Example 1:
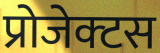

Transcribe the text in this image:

प्रोजेक्‍टस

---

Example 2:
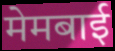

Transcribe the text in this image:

मेमबाई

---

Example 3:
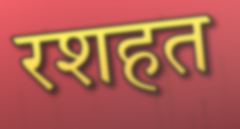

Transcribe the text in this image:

रशहत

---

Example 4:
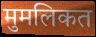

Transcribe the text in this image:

मुमलिकत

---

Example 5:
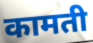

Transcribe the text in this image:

कामती